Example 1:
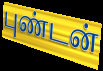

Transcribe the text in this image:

புண்டன்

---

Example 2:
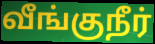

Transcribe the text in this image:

வீங்குநீர்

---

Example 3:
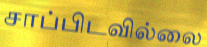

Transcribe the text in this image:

சாப்பிடவில்லை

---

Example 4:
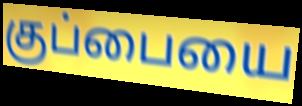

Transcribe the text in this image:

குப்பையை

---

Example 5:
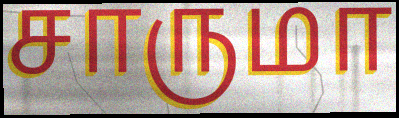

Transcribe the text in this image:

சாருமா